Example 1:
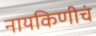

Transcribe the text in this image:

नायकिणीचं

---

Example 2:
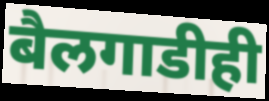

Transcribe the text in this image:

बैलगाडीही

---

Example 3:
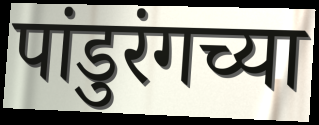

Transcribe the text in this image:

पांडुरंगच्या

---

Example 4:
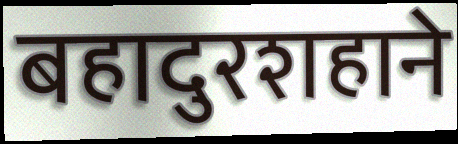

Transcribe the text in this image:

बहादुरशहाने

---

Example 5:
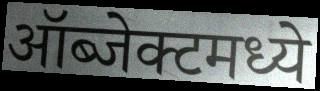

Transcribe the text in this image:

ऑब्जेक्टमध्ये